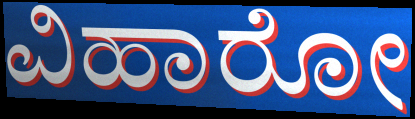
ವಿಹಾರೋ